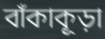
বাঁকাকূড়া